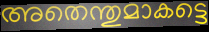
അതെന്തുമാകട്ടെ